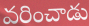
వరించాడు